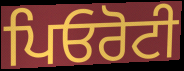
ਪਿਓਰੋਟੀ